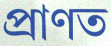
প্ৰাণত